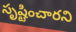
సృష్టించారని